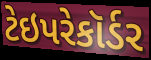
ટેઇપરેકૉર્ડર